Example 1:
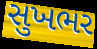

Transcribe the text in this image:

સુખભર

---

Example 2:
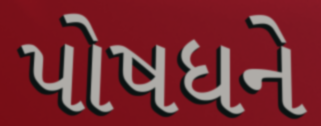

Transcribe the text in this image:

પોષધને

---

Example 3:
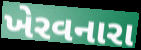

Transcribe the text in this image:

ખેરવનારા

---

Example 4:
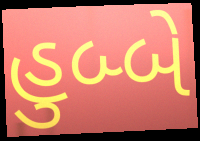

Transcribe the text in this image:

હુબ્બે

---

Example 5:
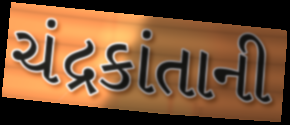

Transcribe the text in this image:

ચંદ્રકાંતાની